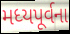
મધ્યપૂર્વના